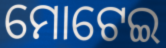
ମୋଟେଇ